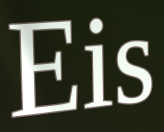
Eis